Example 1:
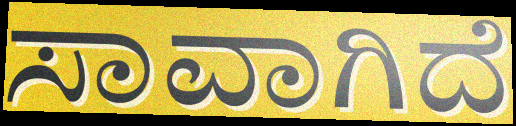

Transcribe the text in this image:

ಸಾವಾಗಿದೆ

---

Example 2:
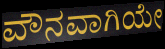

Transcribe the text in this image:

ವೌನವಾಗಿಯೇ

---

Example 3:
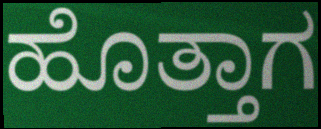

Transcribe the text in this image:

ಹೊತ್ತಾಗ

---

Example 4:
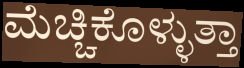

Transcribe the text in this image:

ಮೆಚ್ಚಿಕೊಳ್ಳುತ್ತಾ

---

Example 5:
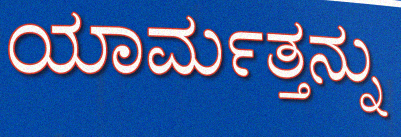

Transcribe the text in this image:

ಯಾರ್ಮತ್ತನ್ನು